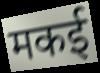
मकई